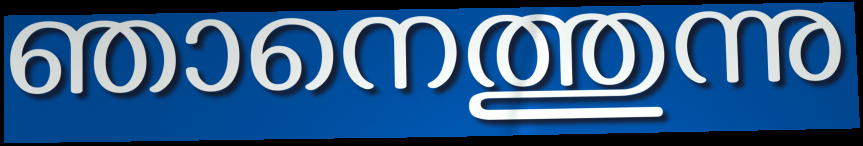
ഞാനെത്തുന്നു